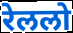
रेललो